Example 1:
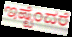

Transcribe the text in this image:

ಇಷ್ಟೆಂದರೆ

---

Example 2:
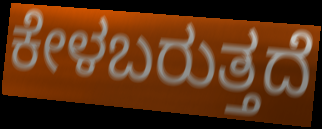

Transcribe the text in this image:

ಕೇಳಬರುತ್ತದೆ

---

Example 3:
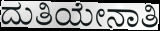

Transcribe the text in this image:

ದುತಿಯೇನಾತಿ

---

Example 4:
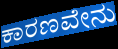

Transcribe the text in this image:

ಕಾರಣವೇನು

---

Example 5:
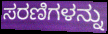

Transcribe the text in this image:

ಸರಣಿಗಳನ್ನು